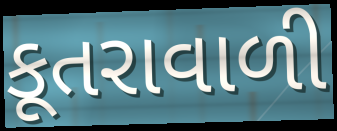
કૂતરાવાળી